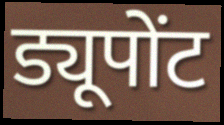
ड्यूपोंट